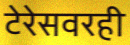
टेरेसवरही